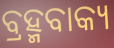
ବ୍ରହ୍ମବାକ୍ୟ